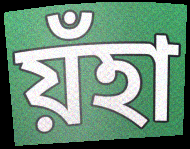
য়ঁহা